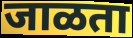
जाळता